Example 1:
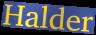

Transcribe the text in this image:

Halder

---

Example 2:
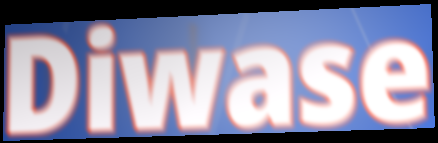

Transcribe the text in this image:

Diwase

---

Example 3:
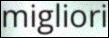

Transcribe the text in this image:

migliori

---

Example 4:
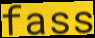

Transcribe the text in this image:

fass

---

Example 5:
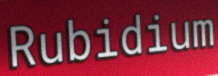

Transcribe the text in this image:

Rubidium